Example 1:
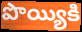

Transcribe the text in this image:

పొయ్యికి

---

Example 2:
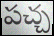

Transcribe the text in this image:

పచ్చ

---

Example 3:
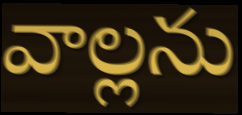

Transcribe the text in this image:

వాల్లను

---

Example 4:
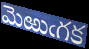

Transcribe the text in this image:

మెఱుఁగక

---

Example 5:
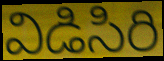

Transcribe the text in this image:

విడిసిరి